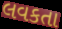
લવકતા